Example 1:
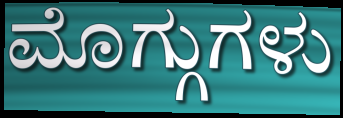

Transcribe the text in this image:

ಮೊಗ್ಗುಗಳು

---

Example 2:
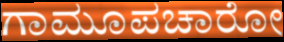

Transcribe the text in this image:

ಗಾಮೂಪಚಾರೋ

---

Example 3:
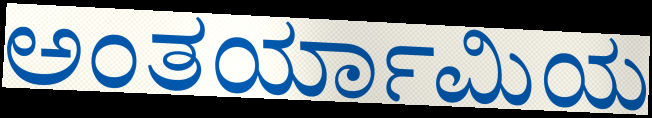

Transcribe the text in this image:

ಅಂತರ್ಯಾಮಿಯ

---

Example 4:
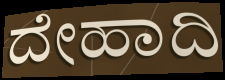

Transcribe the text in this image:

ದೇಹಾದಿ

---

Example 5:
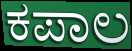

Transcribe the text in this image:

ಕಪಾಲ